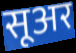
सूअर